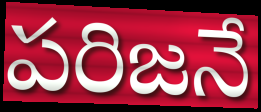
పరిజనే